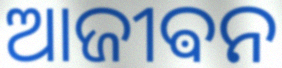
ଆଜୀଵନ